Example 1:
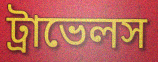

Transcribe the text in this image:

ট্রাভেলস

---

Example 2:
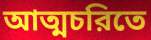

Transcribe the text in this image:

আত্মচরিতে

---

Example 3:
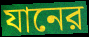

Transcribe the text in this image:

যানের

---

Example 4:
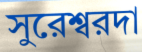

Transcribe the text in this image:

সুরেশ্বরদা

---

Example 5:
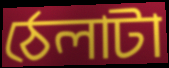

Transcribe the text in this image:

ঠেলাটা